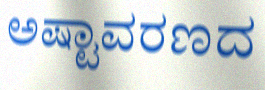
ಅಷ್ಟಾವರಣದ